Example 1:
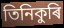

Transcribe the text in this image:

তিনিকুৰি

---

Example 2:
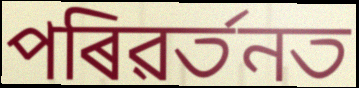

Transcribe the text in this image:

পৰিৱৰ্তনত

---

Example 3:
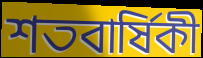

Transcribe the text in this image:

শতবাৰ্ষিকী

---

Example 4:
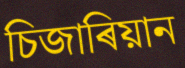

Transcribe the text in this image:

চিজাৰিয়ান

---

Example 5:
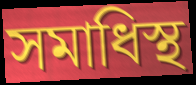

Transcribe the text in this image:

সমাধিস্থ